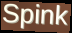
Spink